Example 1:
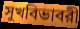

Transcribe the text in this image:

সুখবিভাবরী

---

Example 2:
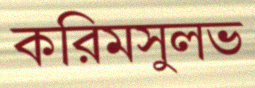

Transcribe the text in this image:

করিমসুলভ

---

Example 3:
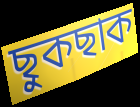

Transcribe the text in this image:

ছুকছাক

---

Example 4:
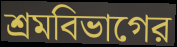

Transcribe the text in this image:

শ্রমবিভাগের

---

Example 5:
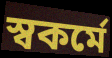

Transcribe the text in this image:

স্বকর্মে